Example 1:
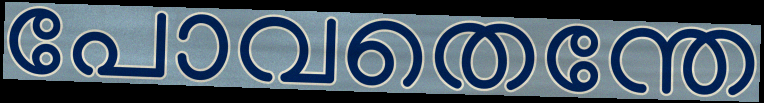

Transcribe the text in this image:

പോവതെന്തേ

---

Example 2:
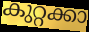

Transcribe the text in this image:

കുറ്റക്കാ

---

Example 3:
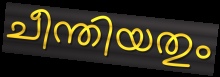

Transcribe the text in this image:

ചീന്തിയതും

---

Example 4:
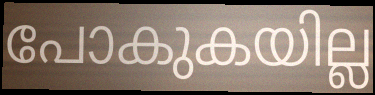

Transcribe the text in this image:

പോകുകയില്ല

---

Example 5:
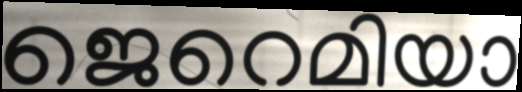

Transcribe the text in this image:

ജെറെമിയാ